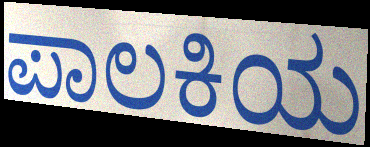
ಪಾಲಕಿಯ